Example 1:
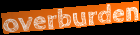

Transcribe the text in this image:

overburden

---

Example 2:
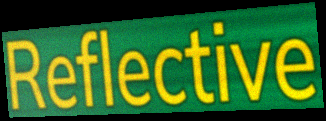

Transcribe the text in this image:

Reflective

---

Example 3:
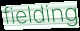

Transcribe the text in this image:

fielding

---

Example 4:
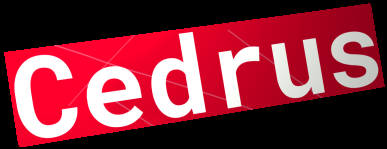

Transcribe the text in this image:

Cedrus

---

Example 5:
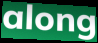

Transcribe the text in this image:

along